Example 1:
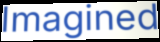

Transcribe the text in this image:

Imagined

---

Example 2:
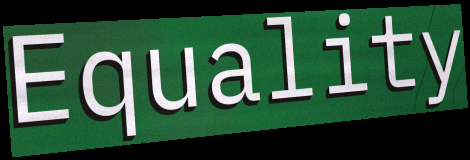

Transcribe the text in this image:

Equality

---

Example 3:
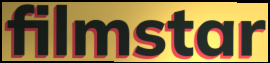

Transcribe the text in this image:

filmstar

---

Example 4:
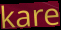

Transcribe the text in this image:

kare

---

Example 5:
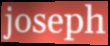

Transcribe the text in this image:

joseph